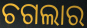
ଚଗଲାର